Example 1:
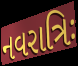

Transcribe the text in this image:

નવરાત્રિઃ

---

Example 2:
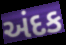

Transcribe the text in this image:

અંદક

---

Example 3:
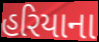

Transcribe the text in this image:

હરિયાના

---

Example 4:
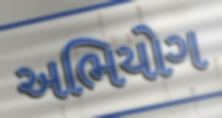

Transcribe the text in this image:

અભિયોગ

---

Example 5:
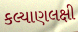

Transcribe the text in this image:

કલ્યાણલક્ષી